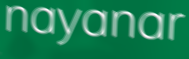
nayanar